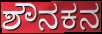
ಶೌನಕನ